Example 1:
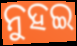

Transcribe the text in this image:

ନୁହଇ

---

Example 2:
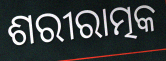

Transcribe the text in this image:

ଶରୀରାତ୍ମକ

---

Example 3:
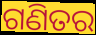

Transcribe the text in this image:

ଗଣିତର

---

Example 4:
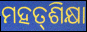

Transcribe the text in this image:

ମହତ୍‌ଶିକ୍ଷା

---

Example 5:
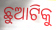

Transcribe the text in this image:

ଛୁଆଟିକୁ